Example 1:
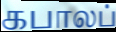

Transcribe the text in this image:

கபாலப்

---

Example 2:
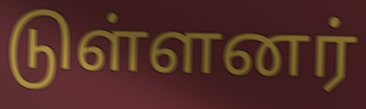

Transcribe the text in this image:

டுள்ளனர்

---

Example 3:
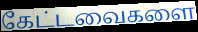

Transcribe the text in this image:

கேட்டவைகளை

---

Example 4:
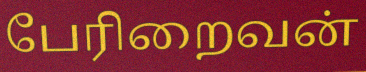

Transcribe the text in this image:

பேரிறைவன்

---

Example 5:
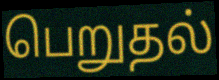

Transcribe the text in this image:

பெறுதல்